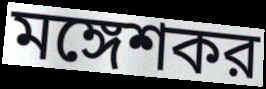
মঙ্গেশকর